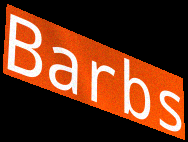
Barbs